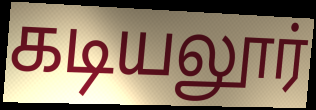
கடியலூர்